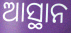
ଆସ୍ଥାନ